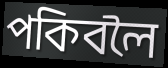
পকিবলৈ